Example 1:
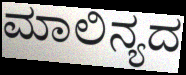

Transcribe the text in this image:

ಮಾಲಿನ್ಯದ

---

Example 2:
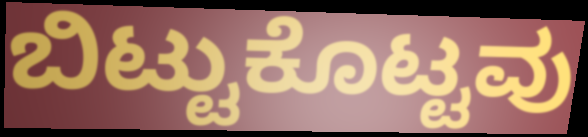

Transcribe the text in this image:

ಬಿಟ್ಟುಕೊಟ್ಟವು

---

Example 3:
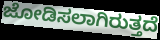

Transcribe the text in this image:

ಜೋಡಿಸಲಾಗಿರುತ್ತದೆ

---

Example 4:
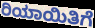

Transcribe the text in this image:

ರಿಯಾಯಿತಿಗೆ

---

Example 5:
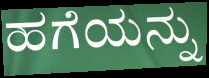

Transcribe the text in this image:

ಹಗೆಯನ್ನು